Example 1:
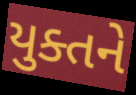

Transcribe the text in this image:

યુક્તને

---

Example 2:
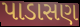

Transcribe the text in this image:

પાડાસણ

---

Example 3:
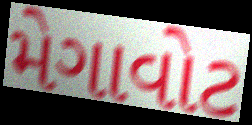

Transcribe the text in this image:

મેગાવોટ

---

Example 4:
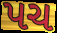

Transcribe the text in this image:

પચ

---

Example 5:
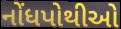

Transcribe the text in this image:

નોંધપોથીઓ